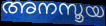
അനസൂയ